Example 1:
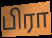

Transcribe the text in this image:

பிரா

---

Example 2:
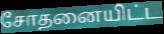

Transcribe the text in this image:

சோதனையிட்ட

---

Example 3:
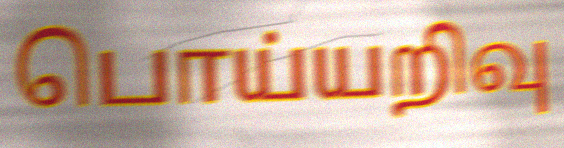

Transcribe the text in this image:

பொய்யறிவு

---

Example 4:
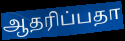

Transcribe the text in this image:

ஆதரிப்பதா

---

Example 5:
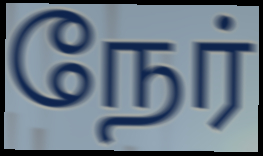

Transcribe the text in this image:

நேர்